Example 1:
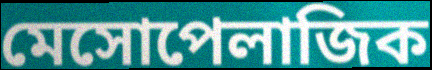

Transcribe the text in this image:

মেসোপেলাজিক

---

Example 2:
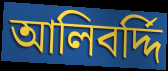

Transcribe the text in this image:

আলিবর্দ্দি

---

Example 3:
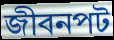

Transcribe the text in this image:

জীবনপট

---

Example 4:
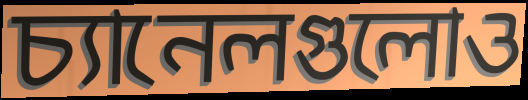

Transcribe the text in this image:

চ্যানেলগুলোও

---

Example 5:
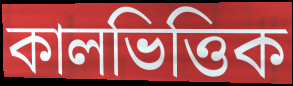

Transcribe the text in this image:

কালভিত্তিক